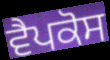
ਵੈਪਕੋਸ